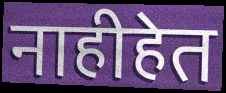
नाहीहेत